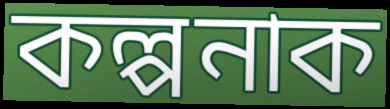
কল্পনাক